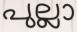
പുല്ലാ